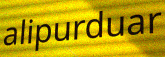
alipurduar